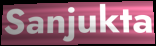
Sanjukta